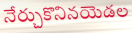
నేర్చుకొనినయెడల